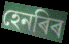
হেনৰিৰ